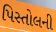
પિસ્તોલની